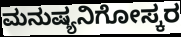
ಮನುಷ್ಯನಿಗೋಸ್ಕರ